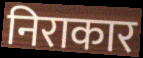
निराकार